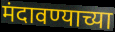
मंदावण्याच्या